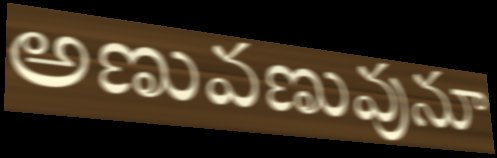
అణువణువునూ